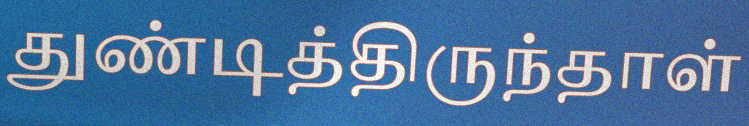
துண்டித்திருந்தாள்